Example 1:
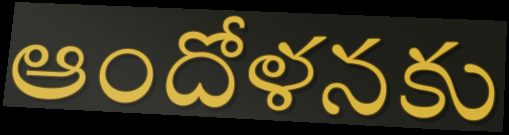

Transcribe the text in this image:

ఆందోళనకు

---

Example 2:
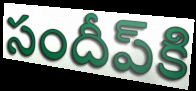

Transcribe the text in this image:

సందీప్‌కి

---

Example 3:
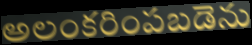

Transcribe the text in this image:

అలంకరింపబడెను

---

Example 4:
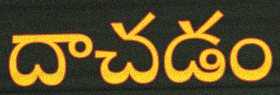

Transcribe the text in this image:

దాచడం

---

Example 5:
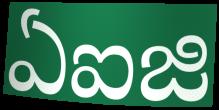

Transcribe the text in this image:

ఏఐజి